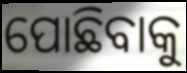
ପୋଛିବାକୁ